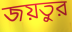
জয়তুর